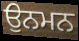
ਉਨਮਨ